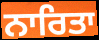
ਨਾਰਿਤਾ